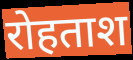
रोहताश